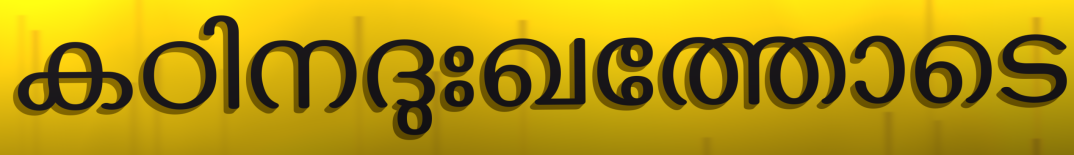
കഠിനദുഃഖത്തോടെ